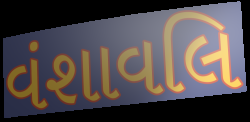
વંશાવલિ